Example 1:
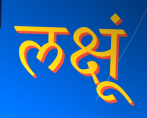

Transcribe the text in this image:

लक्षूं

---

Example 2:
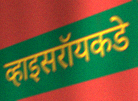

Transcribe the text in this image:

व्हाइसरॉयकडे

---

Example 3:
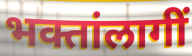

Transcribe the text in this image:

भक्तांलागीं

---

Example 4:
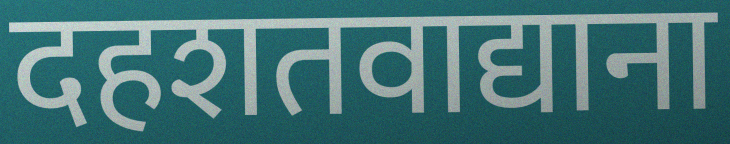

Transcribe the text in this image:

दहशतवाद्याना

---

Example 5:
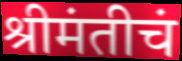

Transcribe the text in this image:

श्रीमंतीचं